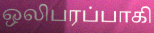
ஒலிபரப்பாகி